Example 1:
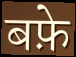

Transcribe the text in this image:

बफ़े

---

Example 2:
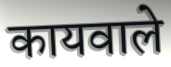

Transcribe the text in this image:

कायवाले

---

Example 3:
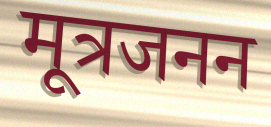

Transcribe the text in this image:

मूत्रजनन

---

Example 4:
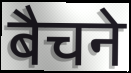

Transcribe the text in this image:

बैचने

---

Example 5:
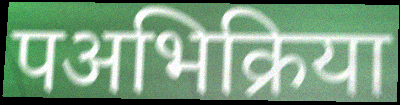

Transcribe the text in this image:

पअभिक्रिया